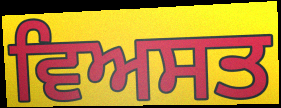
ਵਿਅਸਤ